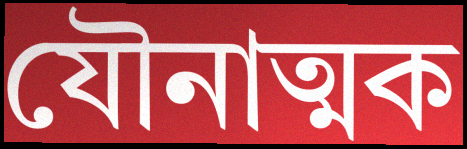
যৌনাত্মক